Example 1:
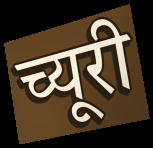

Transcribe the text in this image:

च्यूरी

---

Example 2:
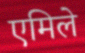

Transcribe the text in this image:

एमिले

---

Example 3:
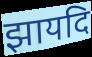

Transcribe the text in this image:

झायदि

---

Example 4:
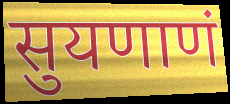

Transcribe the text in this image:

सुयणाणं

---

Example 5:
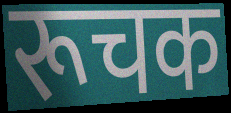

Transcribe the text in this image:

रूचक